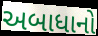
અબાધાનો